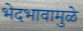
भेदभावामुळे